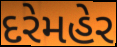
દરેમહેર